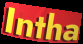
Intha